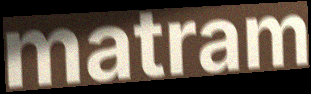
matram